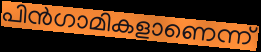
പിൻഗാമികളാണെന്ന്